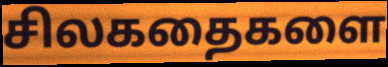
சிலகதைகளை